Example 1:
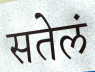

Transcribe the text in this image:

सतेलं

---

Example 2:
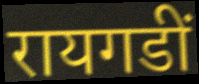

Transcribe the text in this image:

रायगडीं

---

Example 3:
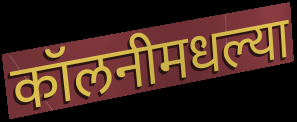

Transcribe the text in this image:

कॉलनीमधल्या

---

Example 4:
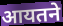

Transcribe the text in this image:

आयतने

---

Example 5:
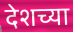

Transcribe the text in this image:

देशच्या